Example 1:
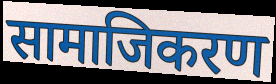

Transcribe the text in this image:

सामाजिकरण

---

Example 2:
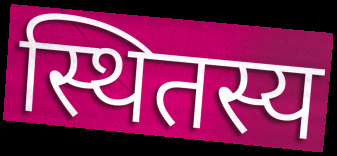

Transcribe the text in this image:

स्थितस्य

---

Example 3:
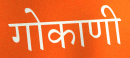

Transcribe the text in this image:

गोकाणी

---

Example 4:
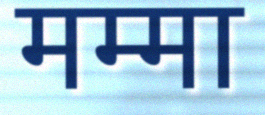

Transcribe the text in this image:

मम्मा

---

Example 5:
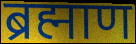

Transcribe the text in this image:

ब्रह्माण